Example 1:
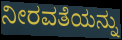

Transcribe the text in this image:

ನೀರವತೆಯನ್ನು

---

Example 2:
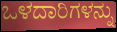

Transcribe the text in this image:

ಒಳದಾರಿಗಳನ್ನು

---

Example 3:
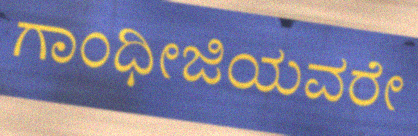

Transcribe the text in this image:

ಗಾಂಧೀಜಿಯವರೇ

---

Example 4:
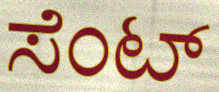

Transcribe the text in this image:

ಸೆಂಟ್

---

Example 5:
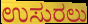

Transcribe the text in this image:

ಉಸುರಲು